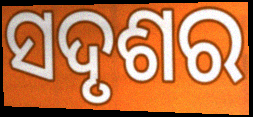
ସଦୃଶର